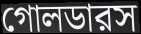
গোলডারস